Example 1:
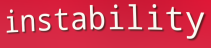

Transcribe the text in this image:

instability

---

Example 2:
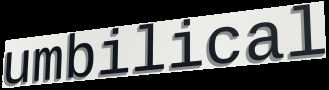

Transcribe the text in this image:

umbilical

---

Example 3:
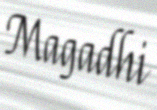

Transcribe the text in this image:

Magadhi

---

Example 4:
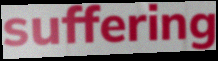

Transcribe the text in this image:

suffering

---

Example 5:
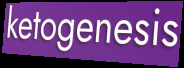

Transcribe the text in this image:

ketogenesis